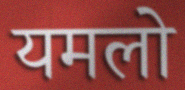
यमलो